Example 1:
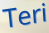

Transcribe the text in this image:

Teri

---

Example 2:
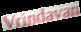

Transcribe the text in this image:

Vrindavan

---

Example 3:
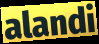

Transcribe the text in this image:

alandi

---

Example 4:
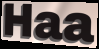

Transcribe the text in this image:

Haa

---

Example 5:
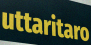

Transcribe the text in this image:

uttaritaro